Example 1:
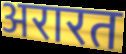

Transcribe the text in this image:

अरारत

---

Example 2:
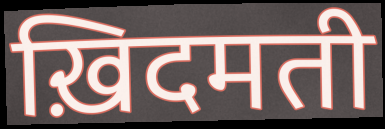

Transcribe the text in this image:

ख़िदमती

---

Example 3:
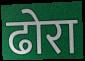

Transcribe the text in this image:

ढोरा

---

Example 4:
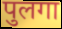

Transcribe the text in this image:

पुलगा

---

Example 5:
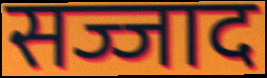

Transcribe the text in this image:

सज्‍जाद